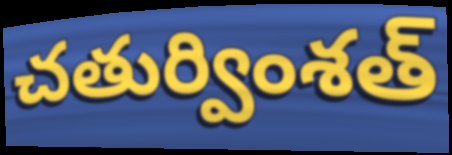
చతుర్వింశత్